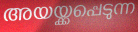
അയയ്ക്കപ്പെടുന്ന